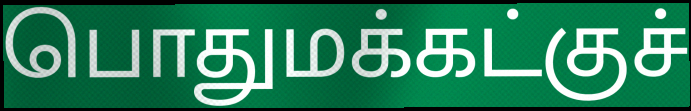
பொதுமக்கட்குச்